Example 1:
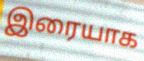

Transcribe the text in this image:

இரையாக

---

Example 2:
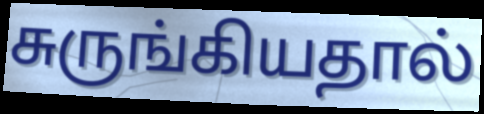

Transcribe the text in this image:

சுருங்கியதால்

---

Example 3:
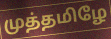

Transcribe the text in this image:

முத்தமிழே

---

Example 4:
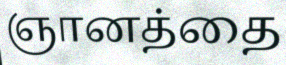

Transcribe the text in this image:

ஞானத்தை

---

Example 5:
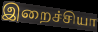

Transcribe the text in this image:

இறைச்சியா